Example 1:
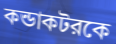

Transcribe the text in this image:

কন্ডাকটরকে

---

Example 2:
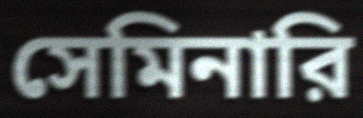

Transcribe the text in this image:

সেমিনারি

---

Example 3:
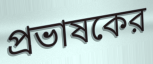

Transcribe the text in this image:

প্রভাষকের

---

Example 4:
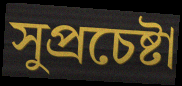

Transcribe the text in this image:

সুপ্রচেষ্টা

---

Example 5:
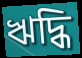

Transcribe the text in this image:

ঋদ্ধি